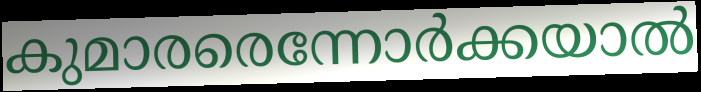
കുമാരരെന്നോർക്കയാൽ